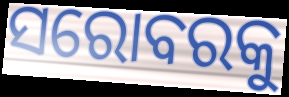
ସରୋବରକୁ